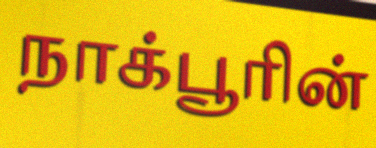
நாக்பூரின்